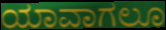
ಯಾವಾಗಲೂ